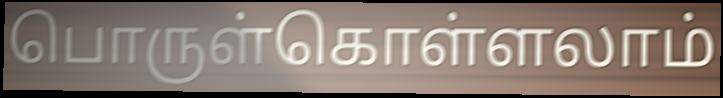
பொருள்கொள்ளலாம்